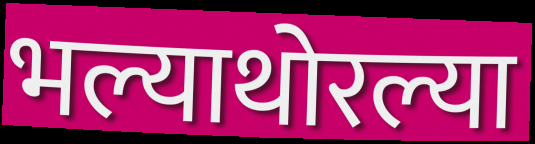
भल्याथोरल्या